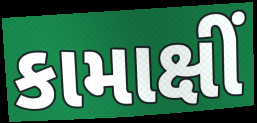
કામાક્ષીં